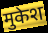
मुकेश